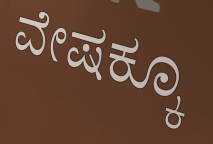
ವೇಷಕ್ಕೂ